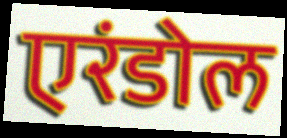
एरंडोल